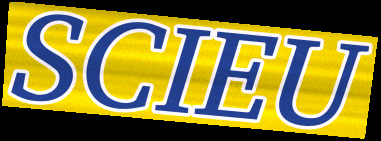
SCIEU